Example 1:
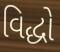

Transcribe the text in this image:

વિદ્ધો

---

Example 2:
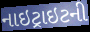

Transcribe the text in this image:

નાઇટ્રાઇટની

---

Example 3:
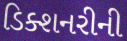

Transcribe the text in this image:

ડિક્શનરીની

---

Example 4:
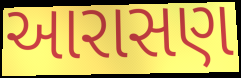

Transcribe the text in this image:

આરાસણ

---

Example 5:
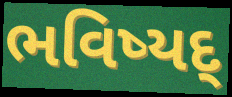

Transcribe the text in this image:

ભવિષ્યદ્